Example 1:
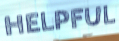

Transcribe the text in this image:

HELPFUL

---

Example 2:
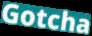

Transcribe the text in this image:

Gotcha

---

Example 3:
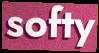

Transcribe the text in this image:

softy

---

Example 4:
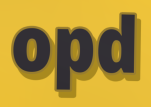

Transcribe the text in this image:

opd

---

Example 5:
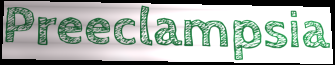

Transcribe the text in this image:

Preeclampsia